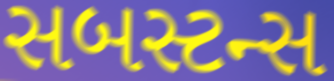
સબસ્ટન્સ